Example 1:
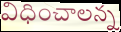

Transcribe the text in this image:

విధించాలన్న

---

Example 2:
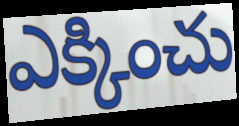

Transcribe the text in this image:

ఎక్కించు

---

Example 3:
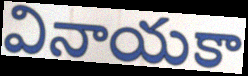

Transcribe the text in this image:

వినాయకా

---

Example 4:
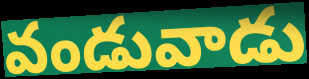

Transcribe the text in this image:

వండువాడు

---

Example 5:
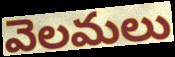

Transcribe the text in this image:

వెలమలు